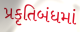
પ્રકૃતિબંધમાં